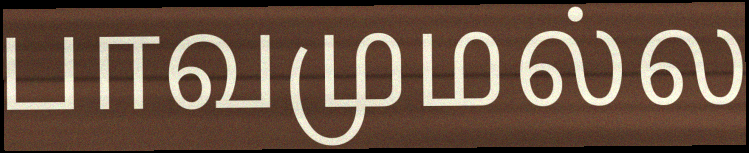
பாவமுமல்ல